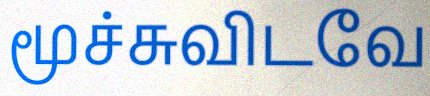
மூச்சுவிடவே